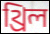
থ্রিল